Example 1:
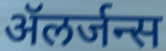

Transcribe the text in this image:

ॲलर्जन्स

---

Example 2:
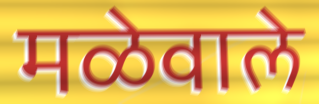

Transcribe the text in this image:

मळेवाले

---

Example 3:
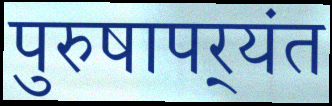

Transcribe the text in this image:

पुरुषापर्यंत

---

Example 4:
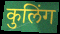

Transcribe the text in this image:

कुलिंग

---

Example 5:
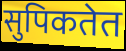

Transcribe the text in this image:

सुपिकतेत